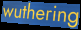
wuthering